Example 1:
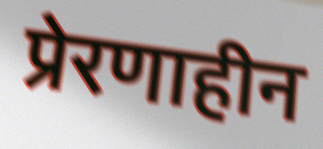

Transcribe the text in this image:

प्रेरणाहीन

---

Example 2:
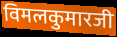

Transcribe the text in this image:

विमलकुमारजी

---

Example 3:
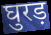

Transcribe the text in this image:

घुरड़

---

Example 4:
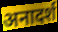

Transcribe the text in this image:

अनादर्श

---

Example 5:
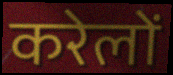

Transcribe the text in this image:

करेलों